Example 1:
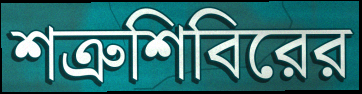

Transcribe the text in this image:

শত্রুশিবিরের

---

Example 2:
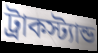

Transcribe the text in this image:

ট্রাকস্ট্যান্ড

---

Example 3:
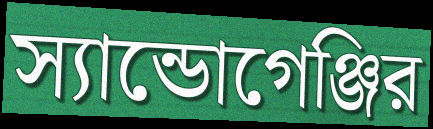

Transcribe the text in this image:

স্যান্ডোগেঞ্জির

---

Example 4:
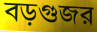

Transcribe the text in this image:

বড়গুজর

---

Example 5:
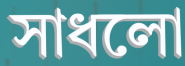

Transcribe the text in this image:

সাধলো